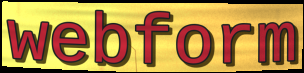
webform